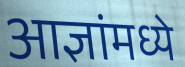
आज्ञांमध्ये